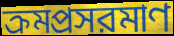
ক্রমপ্রসরমাণ